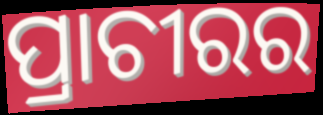
ପ୍ରାଚୀରର